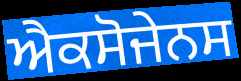
ਐਕਸੋਜੇਨਸ